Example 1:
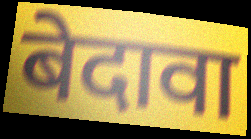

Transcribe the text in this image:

बेदावा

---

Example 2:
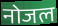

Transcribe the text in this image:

नोजल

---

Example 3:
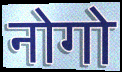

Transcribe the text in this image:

नोगो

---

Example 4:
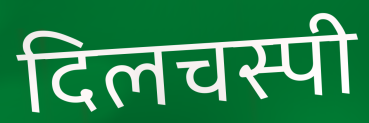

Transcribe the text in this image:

दिलचस्‍पी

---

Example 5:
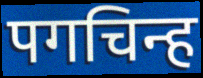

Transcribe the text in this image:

पगचिन्ह